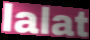
lalat